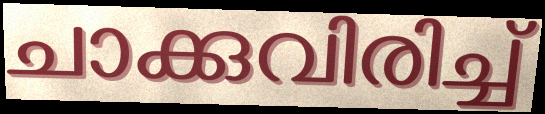
ചാക്കുവിരിച്ച്